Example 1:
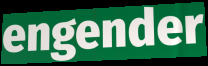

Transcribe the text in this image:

engender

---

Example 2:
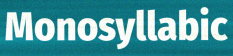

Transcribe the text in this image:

Monosyllabic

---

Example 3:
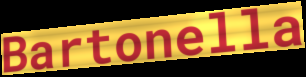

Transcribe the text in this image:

Bartonella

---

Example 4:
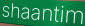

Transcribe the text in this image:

shaantim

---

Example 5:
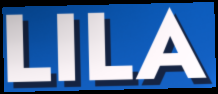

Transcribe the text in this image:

LILA